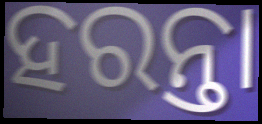
ହରନ୍ତା